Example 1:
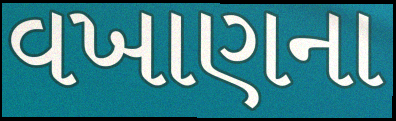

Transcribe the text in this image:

વખાણના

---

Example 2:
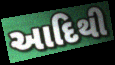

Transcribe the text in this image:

આદિથી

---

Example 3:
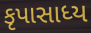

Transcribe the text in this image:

કૃપાસાધ્ય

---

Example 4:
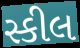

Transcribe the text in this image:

સ્કીલ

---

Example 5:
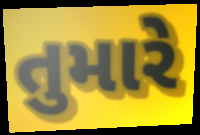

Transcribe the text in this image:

તુમારે